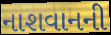
નાશવાનની